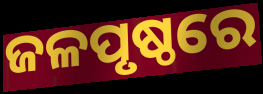
ଜଳପୃଷ୍ଠରେ